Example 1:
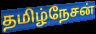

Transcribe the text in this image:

தமிழ்நேசன்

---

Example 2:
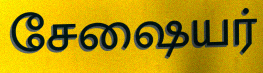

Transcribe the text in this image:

சேஷையர்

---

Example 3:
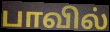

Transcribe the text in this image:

பாவில்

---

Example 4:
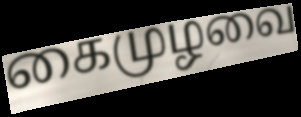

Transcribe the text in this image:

கைமுழவை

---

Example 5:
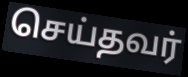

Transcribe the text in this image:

செய்தவர்